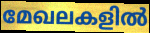
മേഖലകളിൽ